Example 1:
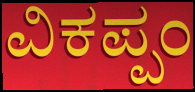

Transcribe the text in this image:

ವಿಕಪ್ಪಂ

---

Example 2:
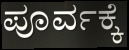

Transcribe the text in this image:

ಪೂರ್ವಕ್ಕೆ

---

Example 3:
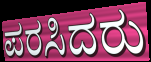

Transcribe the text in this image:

ಪರಸಿದರು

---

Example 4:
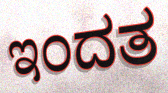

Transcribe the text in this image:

ಇಂದತ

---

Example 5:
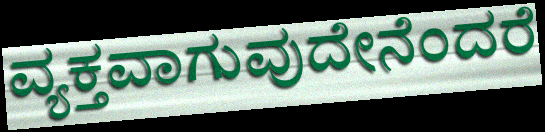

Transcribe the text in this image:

ವ್ಯಕ್ತವಾಗುವುದೇನೆಂದರೆ